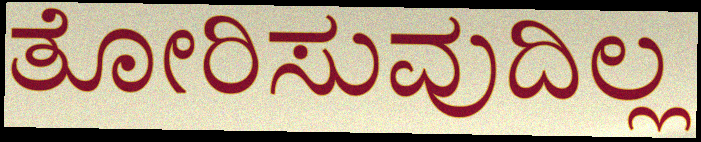
ತೋರಿಸುವುದಿಲ್ಲ